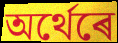
অৰ্থেৰে